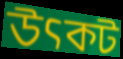
উৎকট